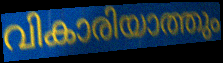
വികാരിയാത്തും